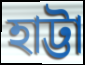
হাট্টা